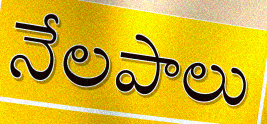
నేలపాలు